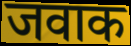
जवाक